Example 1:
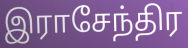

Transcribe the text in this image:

இராசேந்திர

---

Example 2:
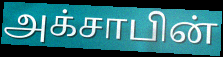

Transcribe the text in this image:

அக்சாபின்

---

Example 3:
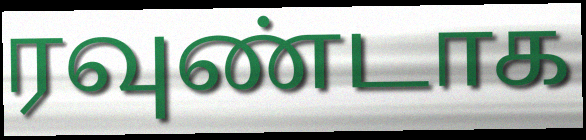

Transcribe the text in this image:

ரவுண்டாக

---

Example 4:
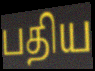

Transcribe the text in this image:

பதிய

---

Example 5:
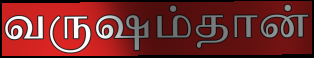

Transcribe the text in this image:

வருஷம்தான்